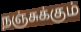
நஞ்சுக்கும்